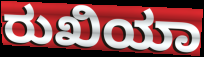
ರುಖಿಯಾ